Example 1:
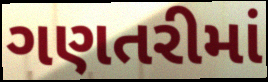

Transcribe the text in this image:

ગણતરીમાં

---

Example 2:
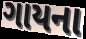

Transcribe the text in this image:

ગાયના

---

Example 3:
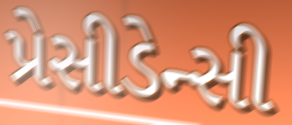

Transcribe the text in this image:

પ્રેસીડેન્સી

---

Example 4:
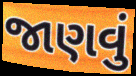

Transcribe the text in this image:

જાણવું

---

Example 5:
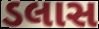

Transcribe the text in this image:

ડલાસ